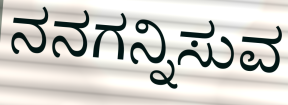
ನನಗನ್ನಿಸುವ